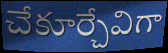
చేకూర్చేవిగా